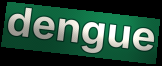
dengue